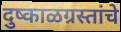
दुष्काळग्रस्तांचे